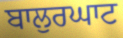
ਬਾਲੁਰਘਾਟ